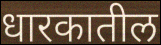
धारकातील